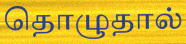
தொழுதால்